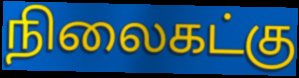
நிலைகட்கு